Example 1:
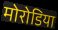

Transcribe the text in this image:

मोरोडिया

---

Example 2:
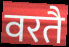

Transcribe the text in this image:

वरतै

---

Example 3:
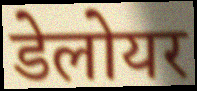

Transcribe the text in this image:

डेलोयर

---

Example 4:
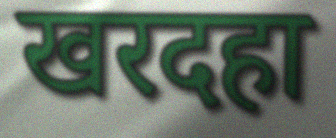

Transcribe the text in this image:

खरदहा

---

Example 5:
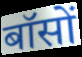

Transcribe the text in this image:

बॉसों